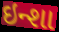
ઇન્શા